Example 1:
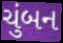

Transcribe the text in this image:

ચુંબન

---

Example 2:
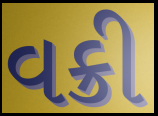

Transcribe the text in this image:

વક્રી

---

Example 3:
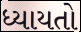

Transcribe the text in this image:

ધ્યાયતો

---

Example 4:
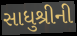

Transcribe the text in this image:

સાધુશ્રીની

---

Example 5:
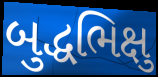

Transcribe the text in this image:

બુદ્ધભિક્ષુ